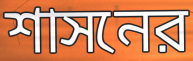
শাসনের